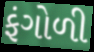
ફંગોળી